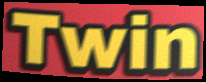
Twin